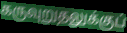
கருவுறுதலுக்குப்